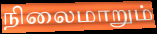
நிலைமாறும்